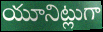
యూనిట్లుగా